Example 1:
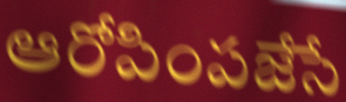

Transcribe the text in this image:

ఆరోపింపజేసే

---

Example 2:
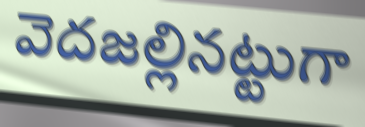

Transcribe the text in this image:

వెదజల్లినట్టుగా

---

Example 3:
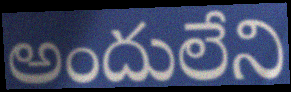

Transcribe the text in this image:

అందులేని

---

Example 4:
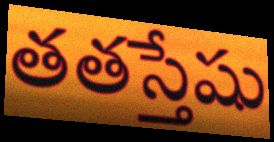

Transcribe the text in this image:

తతస్తేషు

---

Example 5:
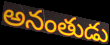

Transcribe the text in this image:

అనంతుడు